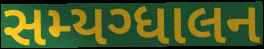
સમ્યગ્ધાલન